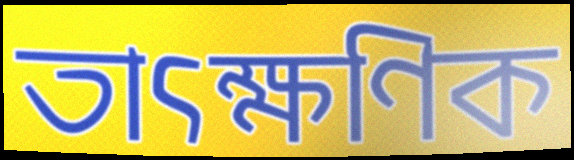
তাৎক্ষণিক